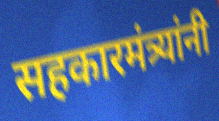
सहकारमंत्र्यांनी